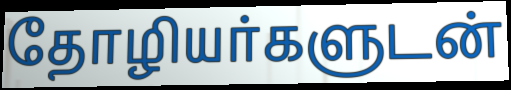
தோழியர்களுடன்